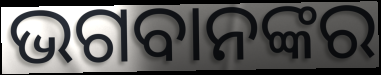
ଭଗବାନଙ୍କର